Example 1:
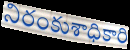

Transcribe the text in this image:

నిరంకుశాధికారి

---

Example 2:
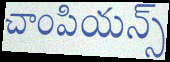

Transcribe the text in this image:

చాంపియన్స్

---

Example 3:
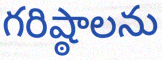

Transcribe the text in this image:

గరిష్ఠాలను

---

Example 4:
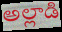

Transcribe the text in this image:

అల్లాడి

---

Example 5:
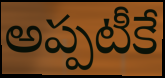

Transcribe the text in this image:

అప్పటీకే